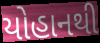
યોહાનથી